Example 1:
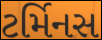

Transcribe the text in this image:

ટર્મિનસ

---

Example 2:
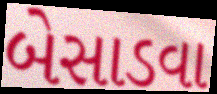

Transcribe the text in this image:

બેસાડવા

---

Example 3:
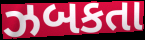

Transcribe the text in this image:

ઝબકતા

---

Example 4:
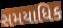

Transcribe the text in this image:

સમયાધિક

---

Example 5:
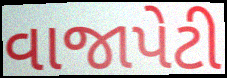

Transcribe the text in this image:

વાજાપેટી